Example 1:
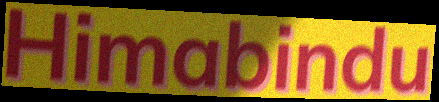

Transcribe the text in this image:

Himabindu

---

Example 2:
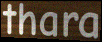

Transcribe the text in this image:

thara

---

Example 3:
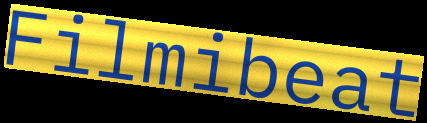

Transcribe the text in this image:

Filmibeat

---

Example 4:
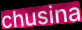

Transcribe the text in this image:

chusina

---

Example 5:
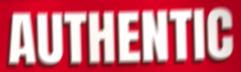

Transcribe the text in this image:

AUTHENTIC